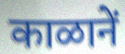
काळानें